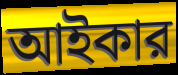
আইকার